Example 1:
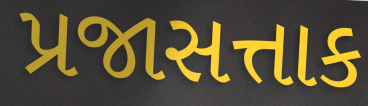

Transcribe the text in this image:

પ્રજાસત્તાક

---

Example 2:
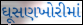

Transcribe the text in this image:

ઘૂસણખોરીમાં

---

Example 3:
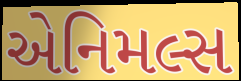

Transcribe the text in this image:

એનિમલ્સ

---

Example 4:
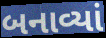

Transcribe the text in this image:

બનાવ્યાં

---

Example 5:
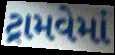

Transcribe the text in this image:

ટ્રામવેમાં